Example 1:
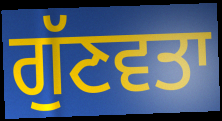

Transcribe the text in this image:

ਗੁੱਣਵਤਾ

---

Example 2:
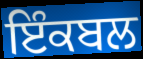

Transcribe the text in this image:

ਇੰਕਬਲ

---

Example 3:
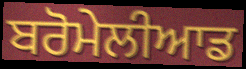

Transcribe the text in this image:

ਬਰੋਮੇਲੀਆਡ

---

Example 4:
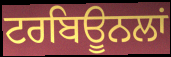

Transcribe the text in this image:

ਟਰਬਿਊਨਲਾਂ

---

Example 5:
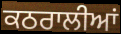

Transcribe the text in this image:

ਕਠਰਾਲੀਆਂ